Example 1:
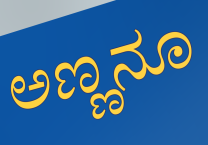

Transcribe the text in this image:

ಅಣ್ಣನೂ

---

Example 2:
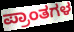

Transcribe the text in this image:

ಪ್ರಾಂತಗಳ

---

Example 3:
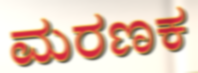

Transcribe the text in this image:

ಮರಣಕ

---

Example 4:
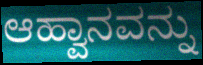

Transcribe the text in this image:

ಆಹ್ವಾನವನ್ನು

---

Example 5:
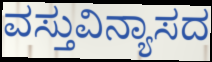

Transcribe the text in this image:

ವಸ್ತುವಿನ್ಯಾಸದ